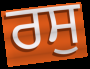
ਰਸੁ